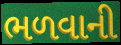
ભળવાની